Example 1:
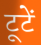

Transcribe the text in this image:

टूटें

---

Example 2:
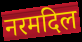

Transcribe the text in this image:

नरमदिल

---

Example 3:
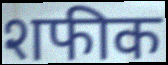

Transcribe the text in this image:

शफीक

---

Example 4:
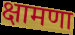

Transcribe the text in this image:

क्षामणा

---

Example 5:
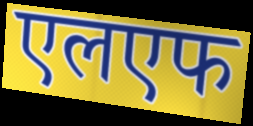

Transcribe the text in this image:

एलएफ